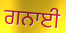
ਗਨਾਈ